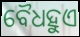
ବୈଧହୁଏ